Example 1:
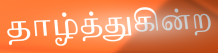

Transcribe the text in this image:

தாழ்த்துகின்ற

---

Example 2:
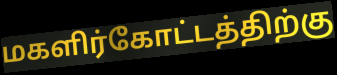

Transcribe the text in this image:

மகளிர்கோட்டத்திற்கு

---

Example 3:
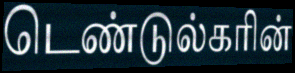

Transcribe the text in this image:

டெண்டுல்கரின்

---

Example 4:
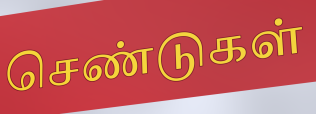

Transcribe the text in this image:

செண்டுகள்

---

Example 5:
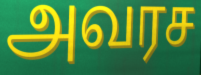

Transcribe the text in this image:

அவரச